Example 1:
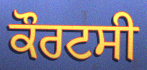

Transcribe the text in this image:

ਕੌਰਟਸੀ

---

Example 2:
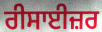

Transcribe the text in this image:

ਰੀਸਾਈਜ਼ਰ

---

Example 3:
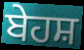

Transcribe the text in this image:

ਬੇਹਸ਼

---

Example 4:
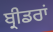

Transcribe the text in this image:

ਬ੍ਰੀਡਰਾਂ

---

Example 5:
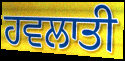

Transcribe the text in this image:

ਹਵਲਾਤੀ